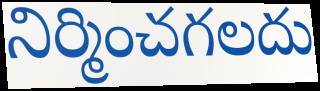
నిర్మించగలదు